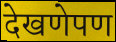
देखणेपण